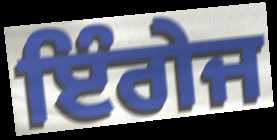
ਇੰਗੇਜ